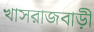
খাসরাজবাড়ী